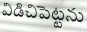
విడిచిపెట్టను